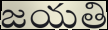
జయతి